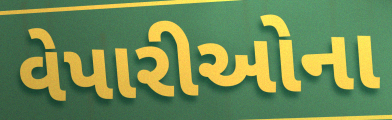
વેપારીઓના